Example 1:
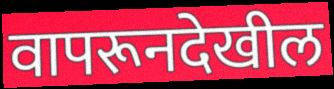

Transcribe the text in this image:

वापरूनदेखील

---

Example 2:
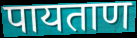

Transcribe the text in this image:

पायताण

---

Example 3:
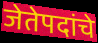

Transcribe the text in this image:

जेतेपदांचे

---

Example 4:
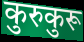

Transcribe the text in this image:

कुरुकुरू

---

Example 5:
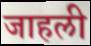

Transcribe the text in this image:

जाहली